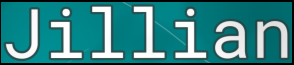
Jillian